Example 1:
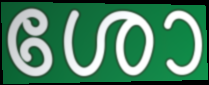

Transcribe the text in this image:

ശോ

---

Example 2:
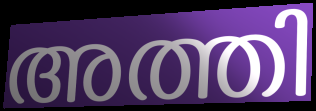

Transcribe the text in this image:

അത്തി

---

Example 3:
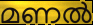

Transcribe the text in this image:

മണൽ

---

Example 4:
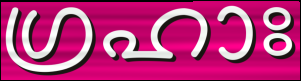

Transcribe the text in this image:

ഗ്രഹാഃ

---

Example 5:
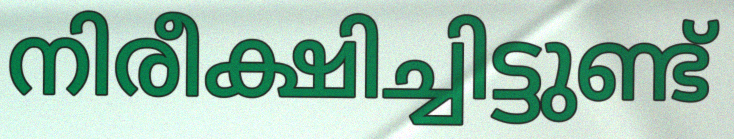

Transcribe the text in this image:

നിരീക്ഷിച്ചിട്ടുണ്ട്